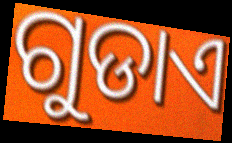
ଗୁଡାଏ